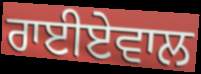
ਰਾਈਏਵਾਲ